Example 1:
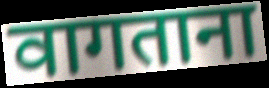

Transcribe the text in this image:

वागताना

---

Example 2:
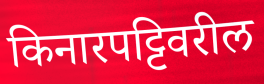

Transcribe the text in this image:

किनारपट्टिवरील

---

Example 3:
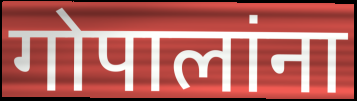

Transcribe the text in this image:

गोपालांना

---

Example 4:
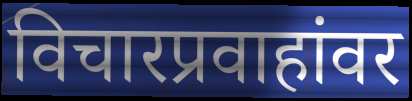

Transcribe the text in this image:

विचारप्रवाहांवर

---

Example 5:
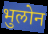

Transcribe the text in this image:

भुलोन